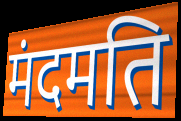
मंदमति